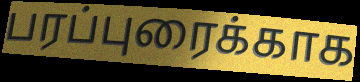
பரப்புரைக்காக